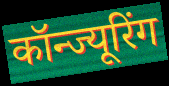
कॉन्ज्यूरिंग